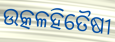
ଉତ୍କଳହିତୈଷୀ